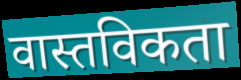
वास्तविकता